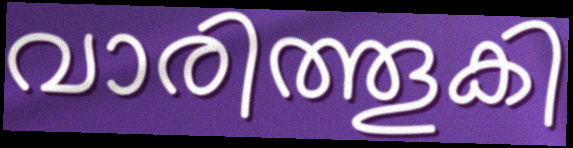
വാരിത്തൂകി